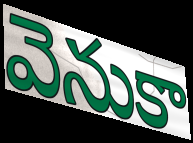
వెనుకా